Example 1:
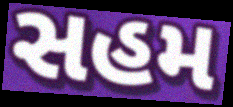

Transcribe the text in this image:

સહમ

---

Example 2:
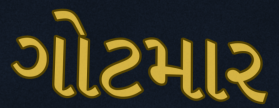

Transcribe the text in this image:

ગોટમાર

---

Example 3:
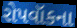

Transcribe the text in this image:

રોપવૉકના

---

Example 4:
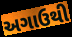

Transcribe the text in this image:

અગાઉથી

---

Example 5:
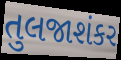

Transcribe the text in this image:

તુલજાશંકર